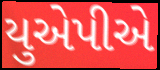
યુએપીએ